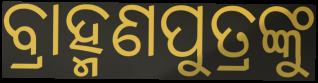
ବ୍ରାହ୍ମଣପୁତ୍ରଙ୍କୁ